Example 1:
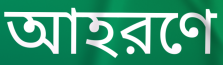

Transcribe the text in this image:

আহরণে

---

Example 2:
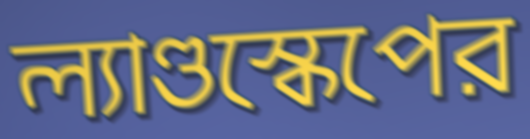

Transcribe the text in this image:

ল্যাণ্ডস্কেপের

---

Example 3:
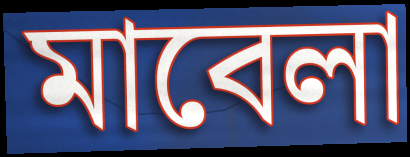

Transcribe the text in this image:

মাবেলা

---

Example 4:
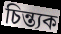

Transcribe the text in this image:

চিন্ত্যক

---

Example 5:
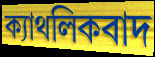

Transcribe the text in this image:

ক্যাথলিকবাদ